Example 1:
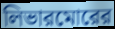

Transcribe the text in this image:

লিভারমোরের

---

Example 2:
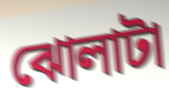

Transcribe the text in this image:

ঝোলাটা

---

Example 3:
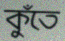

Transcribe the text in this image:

কুঁতে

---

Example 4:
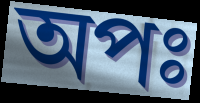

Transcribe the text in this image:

অপঃ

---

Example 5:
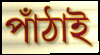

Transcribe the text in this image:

পাঁঠাই